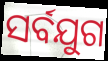
ସର୍ବଯୁଗ